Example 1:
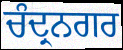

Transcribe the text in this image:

ਚੰਦ੍ਰਨਗਰ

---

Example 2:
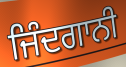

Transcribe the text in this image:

ਜਿੰਦਗਾਨੀ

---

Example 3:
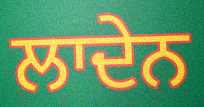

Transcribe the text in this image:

ਲਾਦੇਨ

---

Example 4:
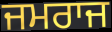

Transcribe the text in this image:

ਜਮਰਾਜ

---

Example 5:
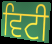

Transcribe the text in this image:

ਵਿਟੀ